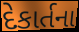
દેકાર્તના